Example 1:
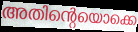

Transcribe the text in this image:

അതിന്റെയൊക്കെ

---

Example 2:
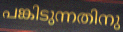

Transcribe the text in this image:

പങ്കിടുന്നതിനു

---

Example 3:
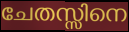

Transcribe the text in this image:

ചേതസ്സിനെ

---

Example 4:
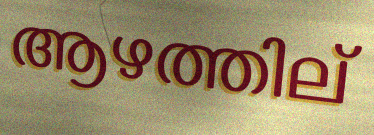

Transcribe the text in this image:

ആഴത്തില്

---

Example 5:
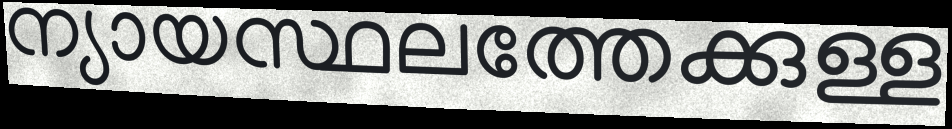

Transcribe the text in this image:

ന്യായസ്ഥലത്തേക്കുള്ള